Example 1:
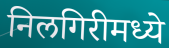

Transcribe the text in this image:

निलगिरीमध्ये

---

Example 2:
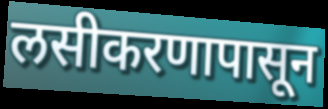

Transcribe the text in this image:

लसीकरणापासून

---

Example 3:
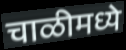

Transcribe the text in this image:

चाळीमध्ये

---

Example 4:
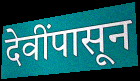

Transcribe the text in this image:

देवींपासून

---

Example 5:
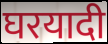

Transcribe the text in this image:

घरयादी